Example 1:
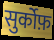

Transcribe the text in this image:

सुर्कोफ़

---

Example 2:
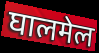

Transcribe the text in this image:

घालमेल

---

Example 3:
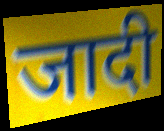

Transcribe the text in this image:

जादी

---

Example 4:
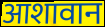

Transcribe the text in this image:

आशावान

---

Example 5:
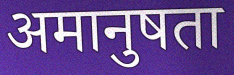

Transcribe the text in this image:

अमानुषता